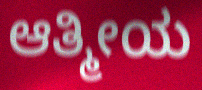
ಆತ್ಮೀಯ